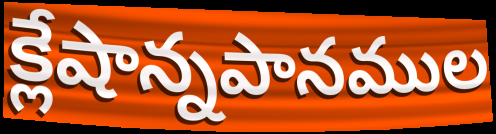
క్లేషాన్నపానముల